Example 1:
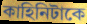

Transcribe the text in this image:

কাহিনিটাকে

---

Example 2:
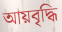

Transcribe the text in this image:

আয়বৃদ্ধি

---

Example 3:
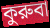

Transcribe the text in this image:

কুরুবা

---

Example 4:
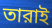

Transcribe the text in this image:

তারাই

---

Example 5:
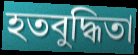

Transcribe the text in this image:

হতবুদ্ধিতা